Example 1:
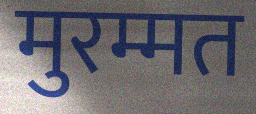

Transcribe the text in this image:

मुरम्मत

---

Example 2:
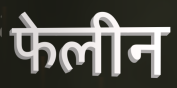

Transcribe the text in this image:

फेलीन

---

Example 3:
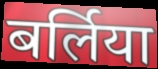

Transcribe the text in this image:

बर्लिया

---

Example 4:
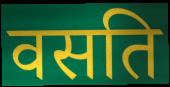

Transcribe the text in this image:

वसति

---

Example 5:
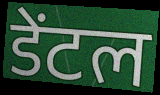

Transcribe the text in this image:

डेंटल